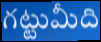
గట్టుమీది